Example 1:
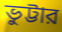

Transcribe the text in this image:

ভুট্টার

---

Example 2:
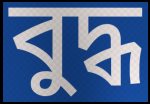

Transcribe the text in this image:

বুদ্ধ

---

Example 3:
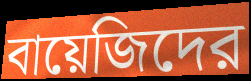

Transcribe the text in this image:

বায়েজিদের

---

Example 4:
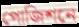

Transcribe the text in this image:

পোজিশনে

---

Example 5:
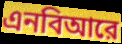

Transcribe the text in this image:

এনবিআরে